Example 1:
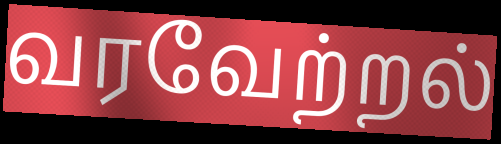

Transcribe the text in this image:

வரவேற்றல்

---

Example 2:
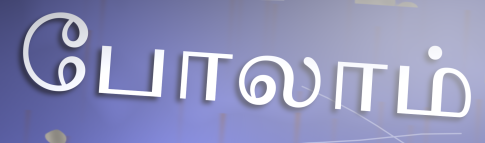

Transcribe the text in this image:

போலாம்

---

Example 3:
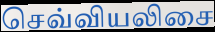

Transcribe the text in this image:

செவ்வியலிசை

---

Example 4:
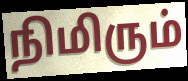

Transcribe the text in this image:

நிமிரும்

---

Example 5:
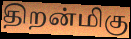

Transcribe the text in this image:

திறன்மிகு